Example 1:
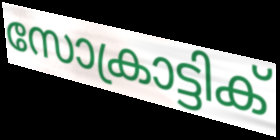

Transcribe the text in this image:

സോക്രാട്ടിക്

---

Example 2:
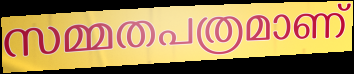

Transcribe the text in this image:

സമ്മതപത്രമാണ്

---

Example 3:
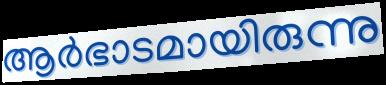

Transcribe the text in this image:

ആർഭാടമായിരുന്നു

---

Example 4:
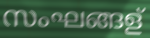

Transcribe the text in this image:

സംഘങ്ങള്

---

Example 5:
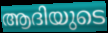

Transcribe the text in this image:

ആദിയുടെ